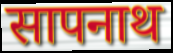
सापनाथ